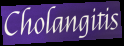
Cholangitis